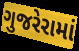
ગુજરેરામાં